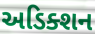
અડિક્શન